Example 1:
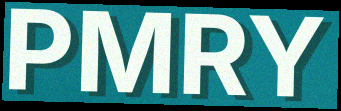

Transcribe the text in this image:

PMRY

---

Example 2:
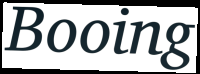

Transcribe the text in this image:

Booing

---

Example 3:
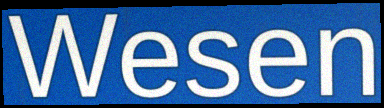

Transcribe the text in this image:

Wesen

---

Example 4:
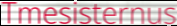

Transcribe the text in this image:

Tmesisternus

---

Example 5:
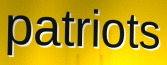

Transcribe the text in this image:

patriots